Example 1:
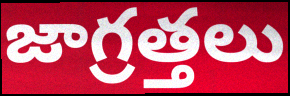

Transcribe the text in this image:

జాగ్రత్తలు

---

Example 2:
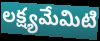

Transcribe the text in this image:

లక్ష్యమేమిటి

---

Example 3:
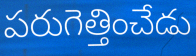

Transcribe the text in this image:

పరుగెత్తించేడు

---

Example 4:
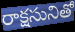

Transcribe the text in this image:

రాక్షసునితో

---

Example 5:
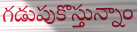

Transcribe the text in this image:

గడుపుకొస్తున్నాం